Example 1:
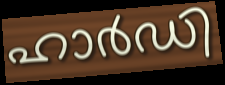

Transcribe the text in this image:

ഹാർഡി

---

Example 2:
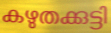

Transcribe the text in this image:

കഴുതക്കുട്ടി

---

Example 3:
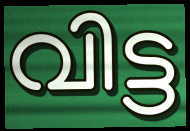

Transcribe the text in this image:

വിട്ട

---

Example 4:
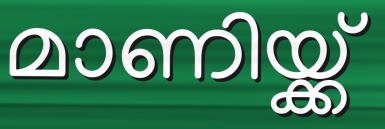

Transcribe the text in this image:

മാണിയ്ക്ക്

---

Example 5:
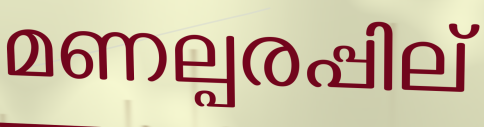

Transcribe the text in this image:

മണല്പരപ്പില്